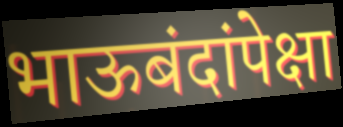
भाऊबंदांपेक्षा